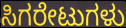
ಸಿಗರೇಟುಗಳು